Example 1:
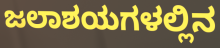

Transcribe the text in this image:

ಜಲಾಶಯಗಳಲ್ಲಿನ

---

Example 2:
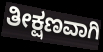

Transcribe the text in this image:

ತೀಕ್ಷಣವಾಗಿ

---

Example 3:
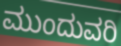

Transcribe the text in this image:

ಮುಂದುವರಿ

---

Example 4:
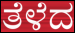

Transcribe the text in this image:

ತೆಳೆದ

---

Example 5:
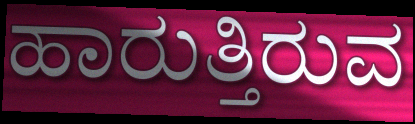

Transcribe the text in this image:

ಹಾರುತ್ತಿರುವ